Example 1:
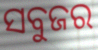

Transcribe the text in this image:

ସବୁଜର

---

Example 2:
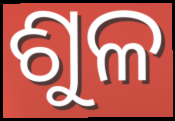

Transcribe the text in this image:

ଶୁଳ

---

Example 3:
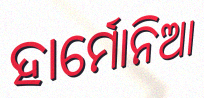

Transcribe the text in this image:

ହାର୍ମୋନିଆ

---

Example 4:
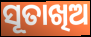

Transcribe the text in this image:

ସୂତାଖିଅ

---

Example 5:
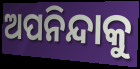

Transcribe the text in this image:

ଅପନିନ୍ଦାକୁ